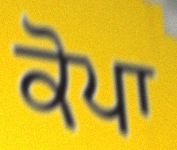
ਕੋਪਾ